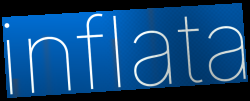
inflata